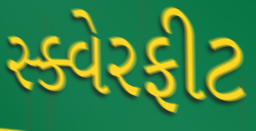
સ્ક્વેરફીટ